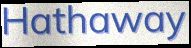
Hathaway